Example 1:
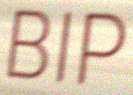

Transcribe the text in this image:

BIP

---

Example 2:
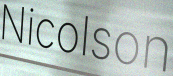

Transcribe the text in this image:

Nicolson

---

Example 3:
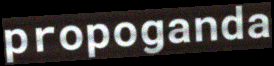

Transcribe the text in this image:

propoganda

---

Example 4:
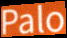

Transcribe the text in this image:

Palo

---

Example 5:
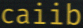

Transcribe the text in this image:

caiib